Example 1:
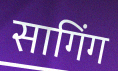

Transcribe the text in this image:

सागिंग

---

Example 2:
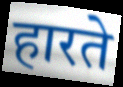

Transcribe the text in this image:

हारते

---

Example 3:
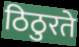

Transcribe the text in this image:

ठिठुरते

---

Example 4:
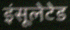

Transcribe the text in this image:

इंसूलेटेड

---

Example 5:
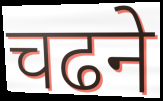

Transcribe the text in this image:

चढने